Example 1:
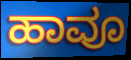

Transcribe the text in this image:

ಹಾವೂ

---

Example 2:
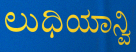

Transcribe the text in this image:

ಲುಧಿಯಾನ್ವಿ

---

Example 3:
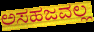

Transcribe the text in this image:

ಅಸಹಜವಲ್ಲ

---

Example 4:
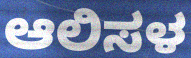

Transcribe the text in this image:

ಆಲಿಸಳ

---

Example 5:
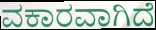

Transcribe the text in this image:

ವಕಾರವಾಗಿದೆ